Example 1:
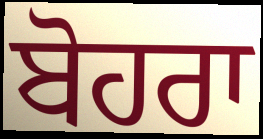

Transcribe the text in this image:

ਬੋਹਰਾ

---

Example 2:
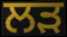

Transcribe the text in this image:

ਲੜ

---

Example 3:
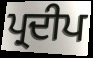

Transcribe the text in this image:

ਪ੍ਰਦੀਪ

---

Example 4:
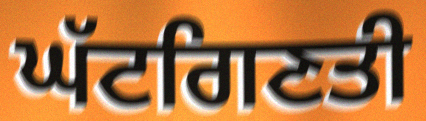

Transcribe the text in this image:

ਘੱਟਗਿਣਤੀ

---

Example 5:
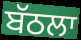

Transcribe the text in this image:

ਬੱਠਲਾ